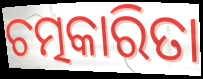
ଚତ୍ମକାରିତା